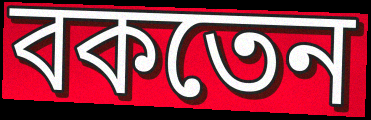
বকতেন